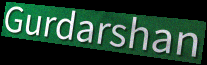
Gurdarshan